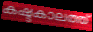
കഷ്ടകാലത്ത്